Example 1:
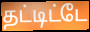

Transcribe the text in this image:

தட்டிட்டே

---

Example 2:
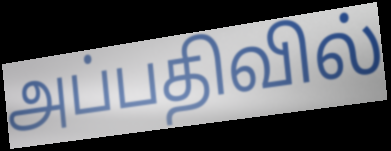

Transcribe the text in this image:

அப்பதிவில்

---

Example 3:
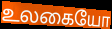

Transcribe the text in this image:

உலகையோ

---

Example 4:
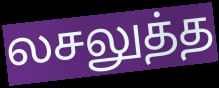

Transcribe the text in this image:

லசலுத்த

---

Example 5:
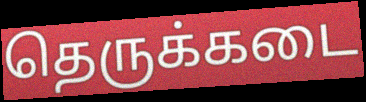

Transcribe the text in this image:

தெருக்கடை